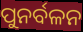
ପୁନର୍ବଳନ